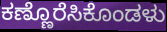
ಕಣ್ಣೊರೆಸಿಕೊಂಡಳು